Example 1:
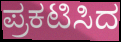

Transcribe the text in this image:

ಪ್ರಕಟಿಸಿದ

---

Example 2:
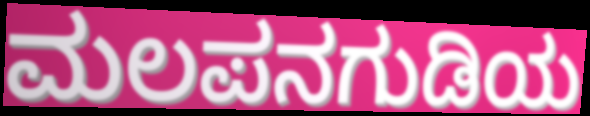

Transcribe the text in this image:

ಮಲಪನಗುಡಿಯ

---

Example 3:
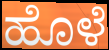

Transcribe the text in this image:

ಹೊಳೆ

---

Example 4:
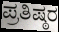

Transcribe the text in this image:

ಪ್ರತಿಷ್ಠರ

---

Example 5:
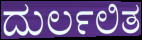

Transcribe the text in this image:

ದುರ್ಲಲಿತ